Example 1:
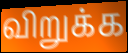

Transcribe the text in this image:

விறுக்க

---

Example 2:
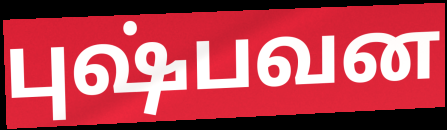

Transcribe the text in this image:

புஷ்பவன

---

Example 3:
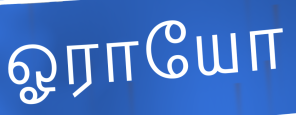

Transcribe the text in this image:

ஓராயோ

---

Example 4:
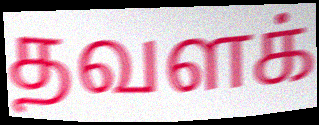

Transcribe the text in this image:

தவளக்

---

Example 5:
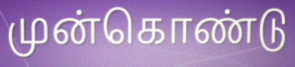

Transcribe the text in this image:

முன்கொண்டு